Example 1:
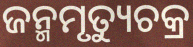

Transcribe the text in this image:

ଜନ୍ମମୃତ୍ୟୁଚକ୍ର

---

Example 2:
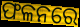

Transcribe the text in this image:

ଫଳନରେ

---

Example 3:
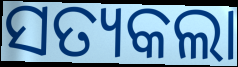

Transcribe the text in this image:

ସତ୍ୟକଲା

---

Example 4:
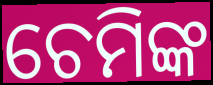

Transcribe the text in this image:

ଚେମିଙ୍କ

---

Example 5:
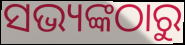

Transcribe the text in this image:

ସଭ୍ୟଙ୍କଠାରୁ